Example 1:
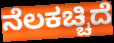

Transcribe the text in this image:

ನೆಲಕಚ್ಚಿದೆ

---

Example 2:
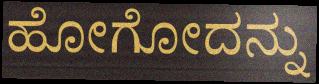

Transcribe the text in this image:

ಹೋಗೋದನ್ನು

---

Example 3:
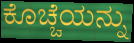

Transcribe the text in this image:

ಕೊಚ್ಚೆಯನ್ನು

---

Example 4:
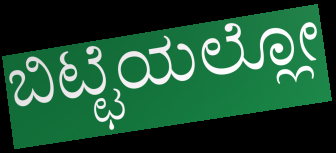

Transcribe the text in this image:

ಬಿಟ್ಟೆಯಲ್ಲೋ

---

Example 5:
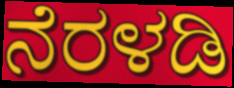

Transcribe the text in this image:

ನೆರಳಡಿ